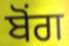
ਬੋਂਗ